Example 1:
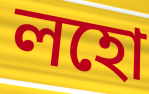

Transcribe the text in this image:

লহো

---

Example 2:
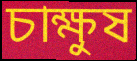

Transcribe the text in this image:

চাক্ষুষ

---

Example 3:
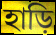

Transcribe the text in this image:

হাড়ি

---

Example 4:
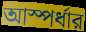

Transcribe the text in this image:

আস্পর্ধার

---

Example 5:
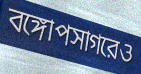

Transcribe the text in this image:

বঙ্গোপসাগরেও